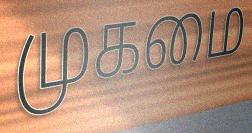
முகமை